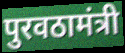
पुरवठामंत्री